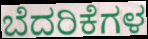
ಬೆದರಿಕೆಗಳ